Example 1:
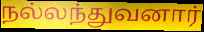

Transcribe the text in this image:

நல்லந்துவனார்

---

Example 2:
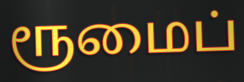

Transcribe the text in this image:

ரூமைப்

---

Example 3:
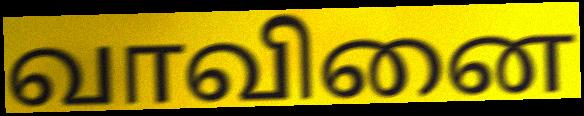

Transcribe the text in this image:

வாவினை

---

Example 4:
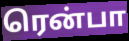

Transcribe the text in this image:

ரென்பா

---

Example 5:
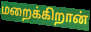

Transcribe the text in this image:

மறைக்கிறான்